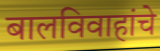
बालविवाहांचे